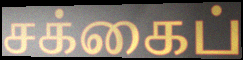
சக்கைப்